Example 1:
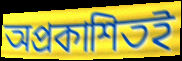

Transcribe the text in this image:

অপ্রকাশিতই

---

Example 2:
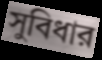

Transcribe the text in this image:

সুবিধার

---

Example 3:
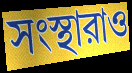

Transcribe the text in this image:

সংস্থারাও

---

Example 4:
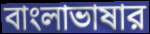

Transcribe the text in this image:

বাংলাভাষার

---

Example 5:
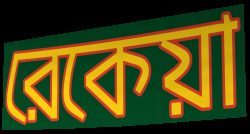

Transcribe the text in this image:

রেকেয়া